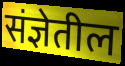
संज्ञेतील